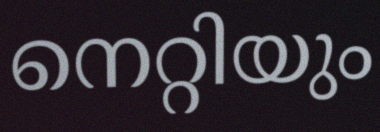
നെറ്റിയും